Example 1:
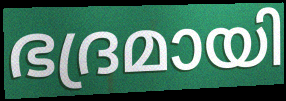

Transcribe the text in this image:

ഭദ്രമായി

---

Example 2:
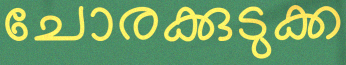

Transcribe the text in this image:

ചോരക്കുടുക്ക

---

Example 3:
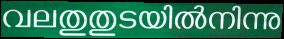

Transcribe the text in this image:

വലതുതുടയിൽനിന്നു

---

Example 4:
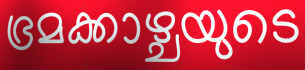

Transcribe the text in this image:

ഭ്രമക്കാഴ്ചയുടെ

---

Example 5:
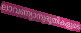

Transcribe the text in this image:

ലാവണ്യാനുഭൂതികളുടെ